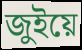
জুইয়ে